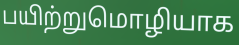
பயிற்றுமொழியாக